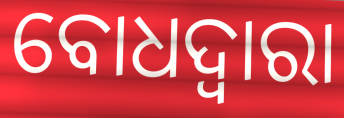
ବୋଧଦ୍ଵାରା